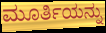
ಮೂರ್ತಿಯನ್ನು